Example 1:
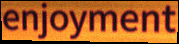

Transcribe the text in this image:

enjoyment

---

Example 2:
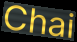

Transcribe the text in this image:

Chai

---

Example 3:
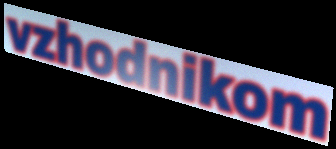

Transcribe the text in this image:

vzhodnikom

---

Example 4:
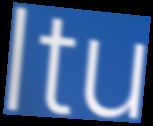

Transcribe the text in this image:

Itu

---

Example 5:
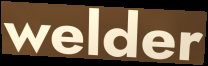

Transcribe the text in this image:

welder